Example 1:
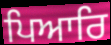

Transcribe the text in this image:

ਪਿਆਰਿ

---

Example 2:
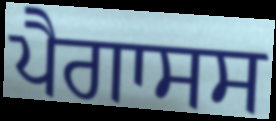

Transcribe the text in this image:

ਪੈਗਾਸਸ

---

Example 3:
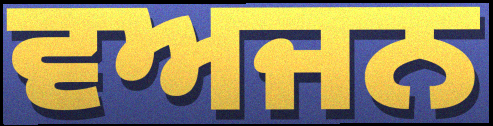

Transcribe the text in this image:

ਵਅਜਨ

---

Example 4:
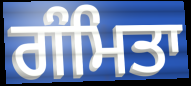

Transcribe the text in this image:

ਗੰਮਿਤਾ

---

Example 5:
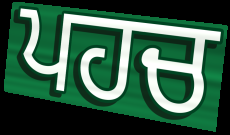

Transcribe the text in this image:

ਪਹਚ